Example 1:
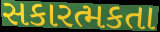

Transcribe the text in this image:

સકારત્મકતા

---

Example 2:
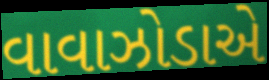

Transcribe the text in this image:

વાવાઝોડાએ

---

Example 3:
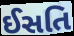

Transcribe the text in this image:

ઈસતિ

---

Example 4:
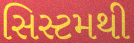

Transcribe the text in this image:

સિસ્ટમથી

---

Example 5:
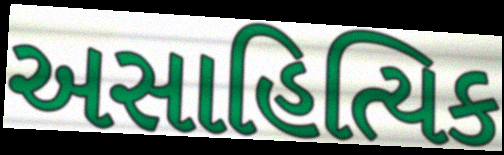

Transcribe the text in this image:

અસાહિત્યિક